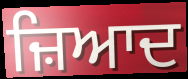
ਜ਼ਿਆਦ